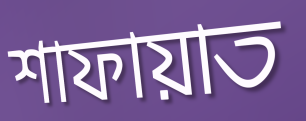
শাফায়াত